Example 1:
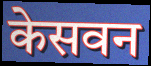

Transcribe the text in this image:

केसवन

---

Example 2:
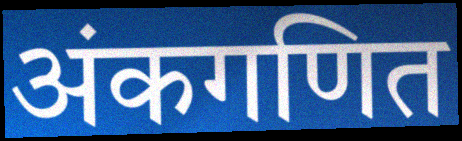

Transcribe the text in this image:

अंकगणित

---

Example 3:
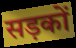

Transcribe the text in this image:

सड़कों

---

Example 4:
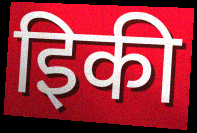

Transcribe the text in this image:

इिकी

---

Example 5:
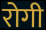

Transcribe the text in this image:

रोगी